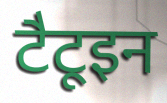
टैटूइन